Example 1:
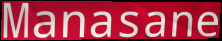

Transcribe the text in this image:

Manasane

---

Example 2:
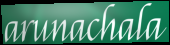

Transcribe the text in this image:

arunachala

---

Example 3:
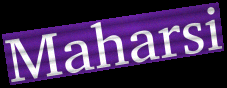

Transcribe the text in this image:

Maharsi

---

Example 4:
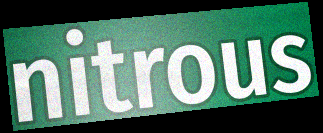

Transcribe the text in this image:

nitrous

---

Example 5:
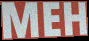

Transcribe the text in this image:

MEH